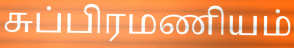
சுப்பிரமணியம்